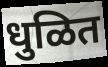
धुळित